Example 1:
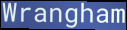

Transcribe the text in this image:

Wrangham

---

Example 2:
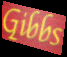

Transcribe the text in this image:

Gibbs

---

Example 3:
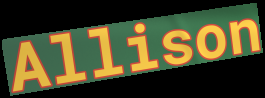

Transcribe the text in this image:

Allison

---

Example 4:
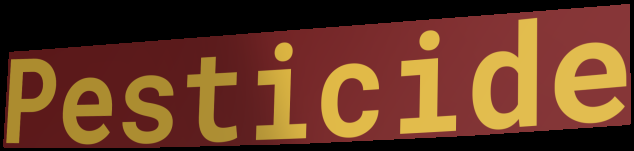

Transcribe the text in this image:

Pesticide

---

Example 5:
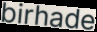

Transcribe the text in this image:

birhade